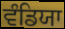
ਵੰਡਿਯਾ